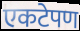
एकटेपण